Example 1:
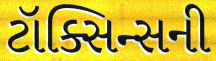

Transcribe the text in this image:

ટૉક્સિન્સની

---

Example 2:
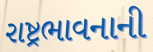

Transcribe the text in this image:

રાષ્ટ્રભાવનાની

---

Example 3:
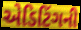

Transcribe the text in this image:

એડિટિંગની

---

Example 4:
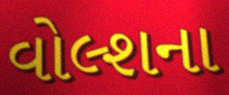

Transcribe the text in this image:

વોલ્શના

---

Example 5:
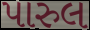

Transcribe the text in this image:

પારુલ